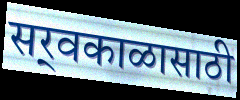
सर्वकाळासाठी